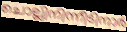
ചൊല്ലിനിന്നീടിനാർ